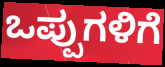
ಒಪ್ಪುಗಳಿಗೆ